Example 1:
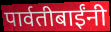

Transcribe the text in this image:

पार्वतीबाईंनी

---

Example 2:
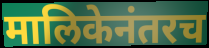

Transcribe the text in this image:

मालिकेनंतरच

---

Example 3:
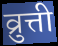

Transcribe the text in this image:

व्रुत्ती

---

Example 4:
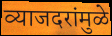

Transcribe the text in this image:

व्याजदरांमुळे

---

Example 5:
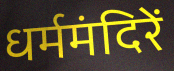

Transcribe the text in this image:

धर्ममंदिरें